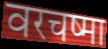
वरचष्मा